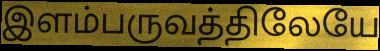
இளம்பருவத்திலேயே